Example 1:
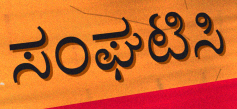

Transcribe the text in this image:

ಸಂಘಟಿಸಿ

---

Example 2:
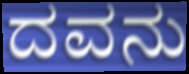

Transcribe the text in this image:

ದವನು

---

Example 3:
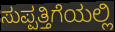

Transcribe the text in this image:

ಸುಪ್ಪತ್ತಿಗೆಯಲ್ಲಿ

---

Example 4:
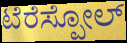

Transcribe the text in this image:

ಟೆರೆಸ್ಪೋಲ್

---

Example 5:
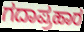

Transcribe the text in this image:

ಗದಾಪ್ರಹಾರ